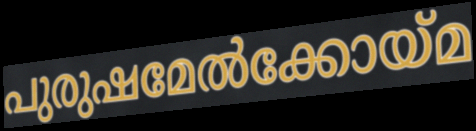
പുരുഷമേൽക്കോയ്മ